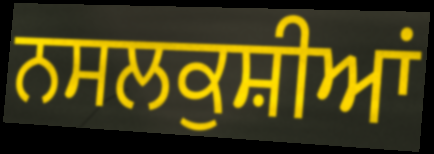
ਨਸਲਕੁਸ਼ੀਆਂ